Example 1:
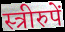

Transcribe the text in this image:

स्त्रीरुपें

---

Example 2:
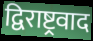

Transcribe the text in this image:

द्विराष्ट्रवाद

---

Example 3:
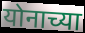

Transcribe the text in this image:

योनाच्या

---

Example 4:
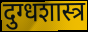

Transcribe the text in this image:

दुग्धशास्त्र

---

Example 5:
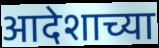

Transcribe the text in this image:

आदेशाच्या